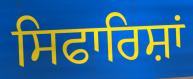
ਸਿਫਾਰਿਸ਼ਾਂ